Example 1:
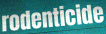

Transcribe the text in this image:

rodenticide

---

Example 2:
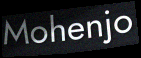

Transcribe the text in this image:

Mohenjo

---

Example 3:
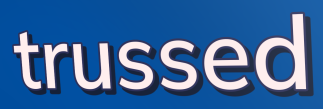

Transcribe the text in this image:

trussed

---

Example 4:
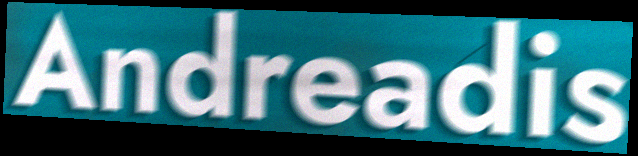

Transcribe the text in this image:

Andreadis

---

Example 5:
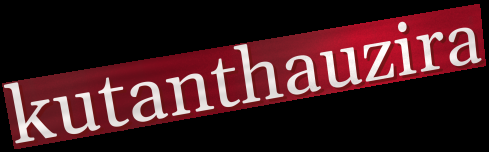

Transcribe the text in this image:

kutanthauzira